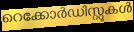
റെക്കോർഡിസ്റ്റുകൾ